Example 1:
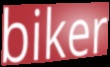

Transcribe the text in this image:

biker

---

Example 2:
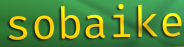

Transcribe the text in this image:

sobaike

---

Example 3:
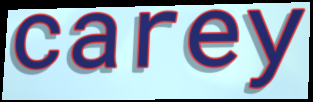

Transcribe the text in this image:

carey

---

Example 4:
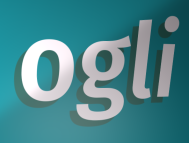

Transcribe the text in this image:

ogli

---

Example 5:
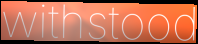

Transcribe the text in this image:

withstood